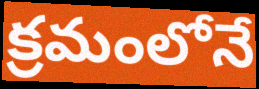
క్రమంలోనే